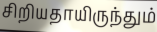
சிறியதாயிருந்தும்